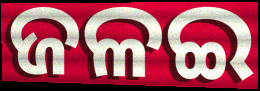
ଜଳଇ